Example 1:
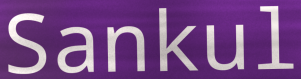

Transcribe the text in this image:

Sankul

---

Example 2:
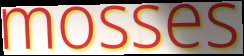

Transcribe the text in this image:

mosses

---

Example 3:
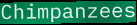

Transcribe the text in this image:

Chimpanzees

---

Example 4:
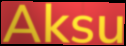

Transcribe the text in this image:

Aksu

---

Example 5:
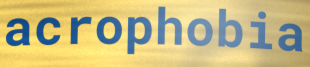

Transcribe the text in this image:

acrophobia